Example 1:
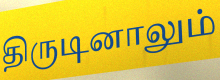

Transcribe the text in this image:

திருடினாலும்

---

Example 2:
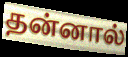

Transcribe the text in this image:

தன்னால்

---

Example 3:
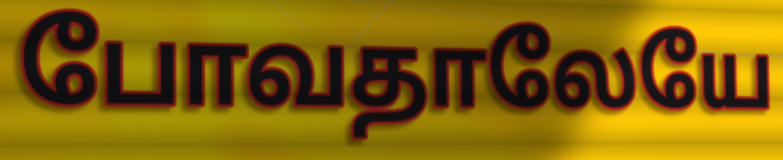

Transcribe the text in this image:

போவதாலேயே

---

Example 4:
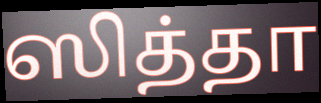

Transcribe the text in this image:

ஸித்தா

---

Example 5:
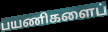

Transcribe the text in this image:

பயணிகளைப்